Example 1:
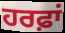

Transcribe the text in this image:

ਹਰਫ਼ਾਂ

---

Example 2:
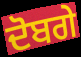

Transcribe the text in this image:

ਦੋਬਗੇ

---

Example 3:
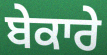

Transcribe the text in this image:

ਬੇਕਾਰੇ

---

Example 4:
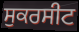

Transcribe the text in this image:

ਸੁਕਰਸੀਟ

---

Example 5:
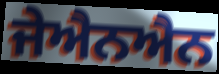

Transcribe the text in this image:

ਜੇਐਨਐਨ